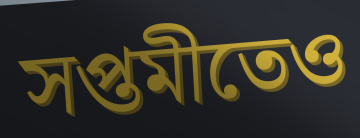
সপ্তমীতেও